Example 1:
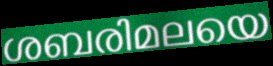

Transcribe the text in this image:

ശബരിമലയെ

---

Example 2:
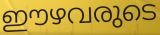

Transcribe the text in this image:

ഈഴവരുടെ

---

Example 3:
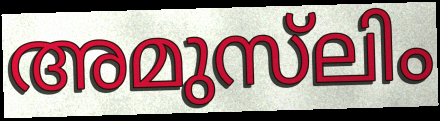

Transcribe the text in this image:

അമുസ്‌ലിം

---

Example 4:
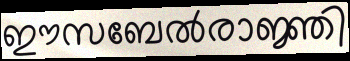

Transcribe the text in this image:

ഈസബേൽരാജ്ഞി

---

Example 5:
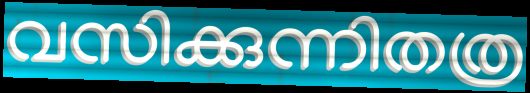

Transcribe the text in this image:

വസിക്കുന്നിതത്ര